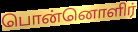
பொன்னொளிர்